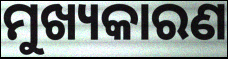
ମୁଖ୍ୟକାରଣ